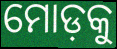
ମୋଡ଼କୁ